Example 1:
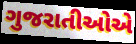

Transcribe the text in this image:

ગુજરાતીઓએ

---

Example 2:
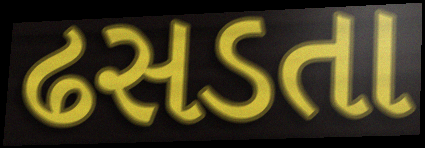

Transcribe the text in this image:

ઢસડતા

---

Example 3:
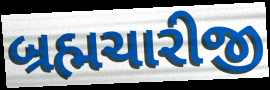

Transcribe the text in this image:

બ્રહ્મચારીજી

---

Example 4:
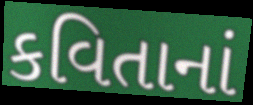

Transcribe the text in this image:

કવિતાનાં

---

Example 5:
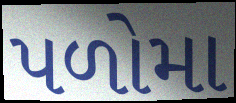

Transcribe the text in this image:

પળોમા